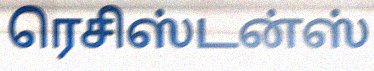
ரெசிஸ்டன்ஸ்